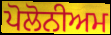
ਪੋਲੋਨੀਅਮ